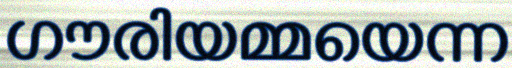
ഗൗരിയമ്മയെന്ന